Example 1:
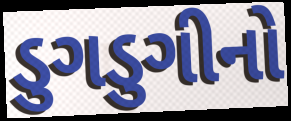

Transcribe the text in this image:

ડુગડુગીનો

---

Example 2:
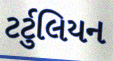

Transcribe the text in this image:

ટર્ટુલિયન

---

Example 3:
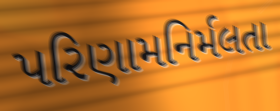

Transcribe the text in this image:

પરિણામનિર્મલતા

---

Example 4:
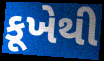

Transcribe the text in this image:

કૂખેથી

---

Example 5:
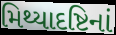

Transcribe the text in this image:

મિથ્યાદષ્ટિનાં